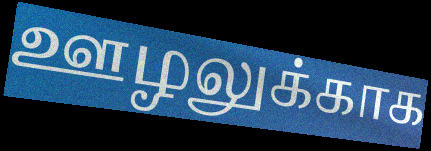
ஊழலுக்காக